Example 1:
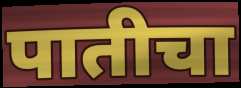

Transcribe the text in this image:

पातीचा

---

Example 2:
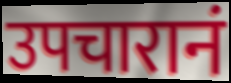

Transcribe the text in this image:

उपचारानं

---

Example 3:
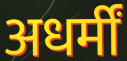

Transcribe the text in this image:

अधर्मीं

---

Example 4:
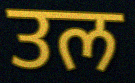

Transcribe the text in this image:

उल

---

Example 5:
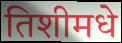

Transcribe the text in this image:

तिशीमधे